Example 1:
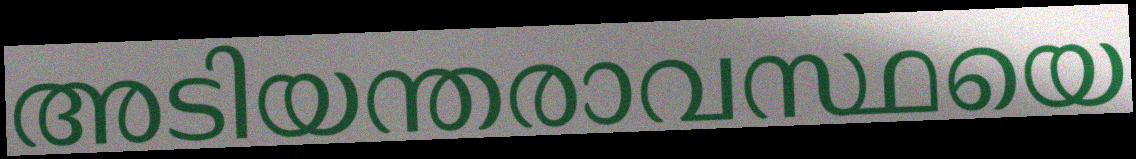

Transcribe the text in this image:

അടിയന്തരാവസ്ഥയെ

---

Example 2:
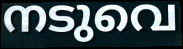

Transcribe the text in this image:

നടുവെ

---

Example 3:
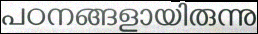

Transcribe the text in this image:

പഠനങ്ങളായിരുന്നു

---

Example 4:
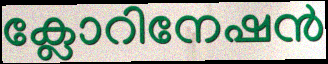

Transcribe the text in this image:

ക്ലോറിനേഷൻ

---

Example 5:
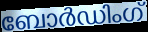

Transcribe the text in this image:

ബോർഡിംഗ്